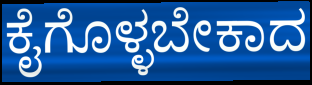
ಕೈಗೊಳ್ಳಬೇಕಾದ